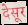
देसूर